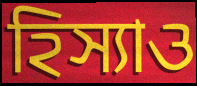
হিস্যাও